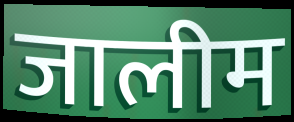
जालीम